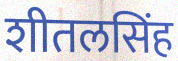
शीतलसिंह